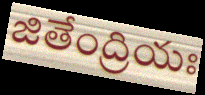
జితేంద్రియః